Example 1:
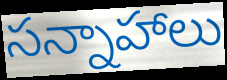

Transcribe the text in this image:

సన్నాహాలు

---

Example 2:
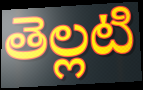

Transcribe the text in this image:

తెల్లటి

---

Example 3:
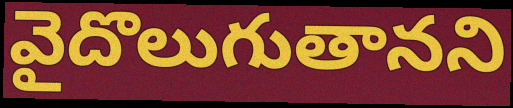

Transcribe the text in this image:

వైదొలుగుతానని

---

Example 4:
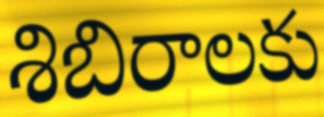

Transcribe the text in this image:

శిబిరాలకు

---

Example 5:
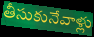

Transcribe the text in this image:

తీసుకునేవాళ్లు